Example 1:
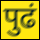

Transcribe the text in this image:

पुढं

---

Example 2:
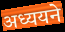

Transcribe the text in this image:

अध्ययने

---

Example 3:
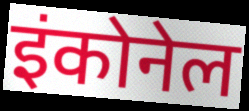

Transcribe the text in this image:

इंकोनेल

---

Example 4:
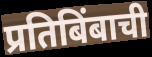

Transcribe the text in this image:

प्रतिबिंबाची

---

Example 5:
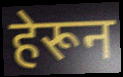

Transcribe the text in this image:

हेरून